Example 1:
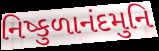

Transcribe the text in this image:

નિષ્કુળાનંદમુનિ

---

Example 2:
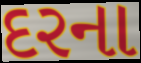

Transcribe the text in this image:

દરના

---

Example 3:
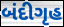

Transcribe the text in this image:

બંદીગૃહ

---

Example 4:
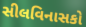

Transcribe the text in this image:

સીલવિનાસકો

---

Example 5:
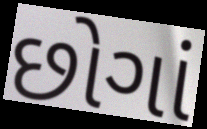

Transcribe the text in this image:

છોગાં